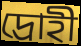
দ্ৰোহী